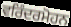
ਵਰਿੰਦਰਮੋਹਨ